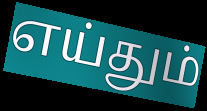
எய்தும்